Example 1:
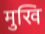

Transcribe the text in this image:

मुखि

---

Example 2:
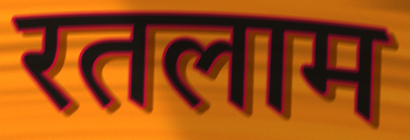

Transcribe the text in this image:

रतलाम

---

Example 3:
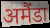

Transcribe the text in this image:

अमैंडा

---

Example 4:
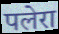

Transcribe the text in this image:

पलेरा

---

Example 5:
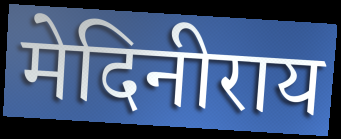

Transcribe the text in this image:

मेदिनीराय